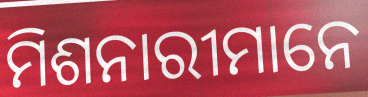
ମିଶନାରୀମାନେ